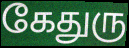
கேதுரு